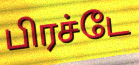
பிரச்டே